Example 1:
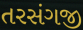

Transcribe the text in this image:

તરસંગજી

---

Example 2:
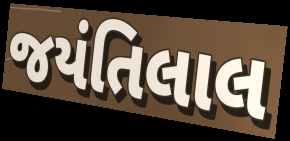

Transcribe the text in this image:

જયંતિલાલ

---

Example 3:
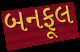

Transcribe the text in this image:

બનફૂલ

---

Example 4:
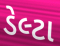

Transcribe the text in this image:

ડેલ્ટા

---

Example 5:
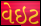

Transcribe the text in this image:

વેઇટ